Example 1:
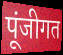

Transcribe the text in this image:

पूंजीगत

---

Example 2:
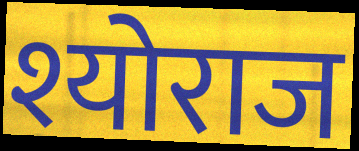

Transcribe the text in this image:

श्योराज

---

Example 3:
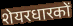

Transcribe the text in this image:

शेयरधारकों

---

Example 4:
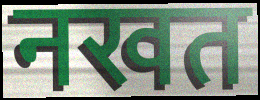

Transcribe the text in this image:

नखत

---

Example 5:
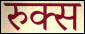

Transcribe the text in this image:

रुक्स